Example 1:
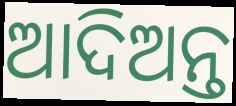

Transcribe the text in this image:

ଆଦିଅନ୍ତ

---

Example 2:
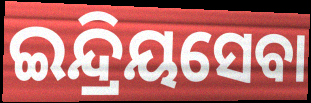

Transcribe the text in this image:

ଇନ୍ଦ୍ରିୟସେବା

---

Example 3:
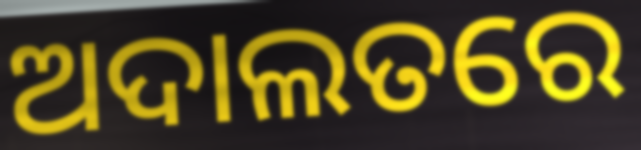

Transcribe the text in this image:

ଅଦାଲତରେ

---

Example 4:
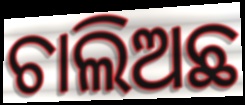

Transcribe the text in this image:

ଚାଲିଅଛ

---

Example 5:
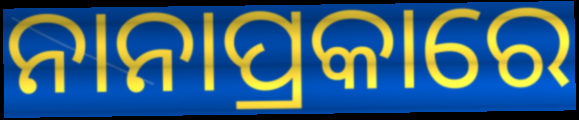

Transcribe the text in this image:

ନାନାପ୍ରକାରେ